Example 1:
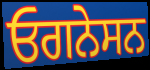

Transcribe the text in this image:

ਓਗਨੇਸਨ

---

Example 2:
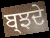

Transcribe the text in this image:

ਬ੍ਝਦੇ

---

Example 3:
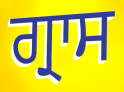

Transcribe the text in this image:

ਗ੍ਰਾਸ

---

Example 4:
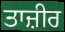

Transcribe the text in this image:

ਤਾਜ਼ੀਰ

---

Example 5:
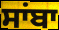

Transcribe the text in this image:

ਸਾਂਬਾ